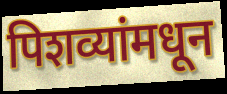
पिशव्यांमधून